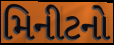
મિનીટનો